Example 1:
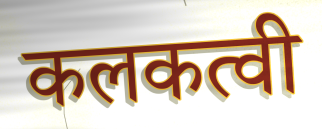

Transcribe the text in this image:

कलकत्वी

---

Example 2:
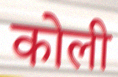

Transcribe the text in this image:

कोली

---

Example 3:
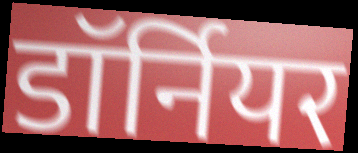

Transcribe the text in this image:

डॉर्नियर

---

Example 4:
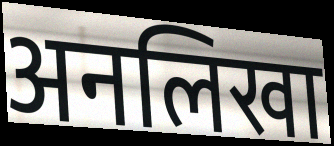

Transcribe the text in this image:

अनलिखा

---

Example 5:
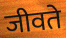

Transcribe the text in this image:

जीवते